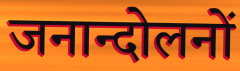
जनान्दोलनों